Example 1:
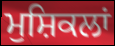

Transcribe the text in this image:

ਮੁਸ਼ਿਕਲਾਂ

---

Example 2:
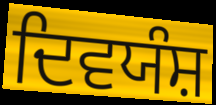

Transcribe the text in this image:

ਦਿਵਯੰਸ਼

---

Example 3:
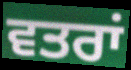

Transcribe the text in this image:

ਵਤਰਾਂ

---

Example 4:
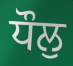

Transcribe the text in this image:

ਧੌਲੁ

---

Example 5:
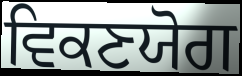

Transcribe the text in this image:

ਵਿਕਣਯੋਗ